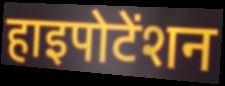
हाइपोटेंशन